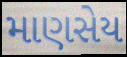
માણસેય